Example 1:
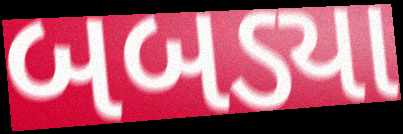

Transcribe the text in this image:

બબડ્યા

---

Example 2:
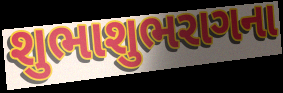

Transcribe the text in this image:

શુભાશુભરાગના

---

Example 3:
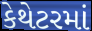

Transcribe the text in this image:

કેથેટરમાં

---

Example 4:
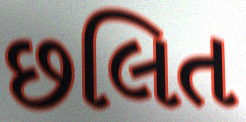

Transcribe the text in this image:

છલિત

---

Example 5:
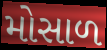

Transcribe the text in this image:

મોસાળ